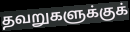
தவறுகளுக்குக்